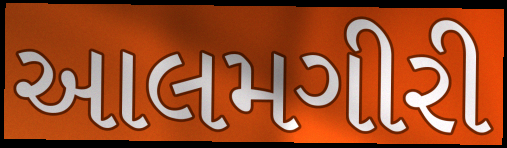
આલમગીરી